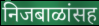
निजबाळांसह